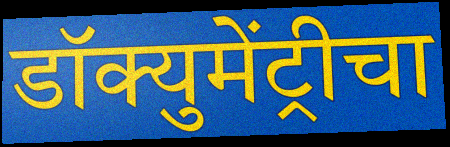
डॉक्युमेंट्रीचा